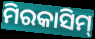
ମିରକାସିମ୍